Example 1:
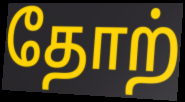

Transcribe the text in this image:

தோற்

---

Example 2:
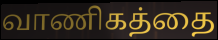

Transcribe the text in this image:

வாணிகத்தை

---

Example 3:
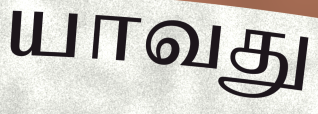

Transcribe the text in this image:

யாவது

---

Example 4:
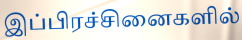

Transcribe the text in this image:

இப்பிரச்சினைகளில்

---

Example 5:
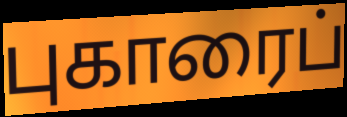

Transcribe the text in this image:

புகாரைப்